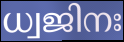
ധ്വജിനഃ